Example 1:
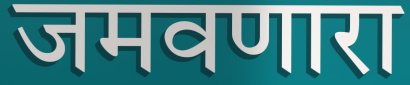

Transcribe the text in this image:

जमवणारा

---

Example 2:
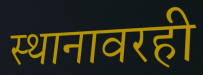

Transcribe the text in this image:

स्थानावरही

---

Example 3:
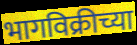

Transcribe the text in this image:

भागविक्रीच्या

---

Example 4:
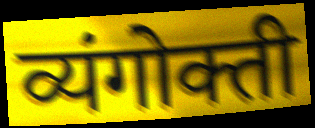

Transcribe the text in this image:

व्यंगोक्ती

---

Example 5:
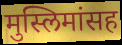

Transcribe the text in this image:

मुस्लिमांसह